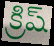
క్రిష్